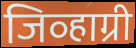
जिव्हाग्री